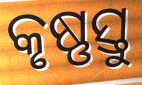
କୃଷ୍ଣସ୍ତୁ